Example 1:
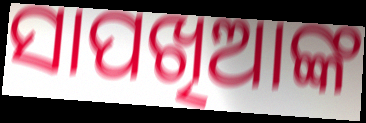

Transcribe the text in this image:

ସାପଖିଆଙ୍କ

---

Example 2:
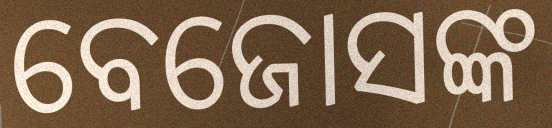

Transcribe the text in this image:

ବେଜୋସଙ୍କ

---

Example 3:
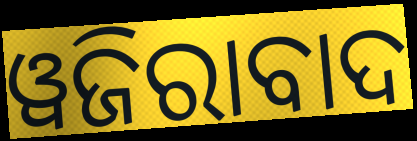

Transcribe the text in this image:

ୱଜିରାବାଦ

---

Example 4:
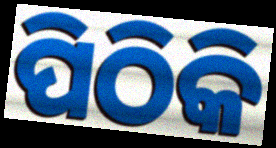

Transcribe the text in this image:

ପିଠିକି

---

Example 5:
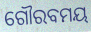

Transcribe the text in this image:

ଗୌରବମୟ